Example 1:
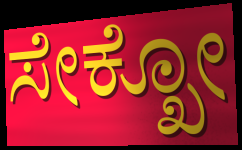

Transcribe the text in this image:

ಸೇಕ್ಖೋ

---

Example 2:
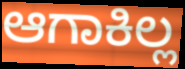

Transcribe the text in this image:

ಆಗಾಕಿಲ್ಲ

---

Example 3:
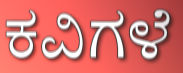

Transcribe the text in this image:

ಕವಿಗಳೆ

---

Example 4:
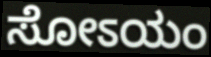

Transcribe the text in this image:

ಸೋಽಯಂ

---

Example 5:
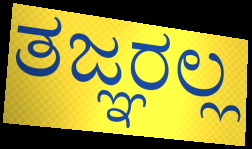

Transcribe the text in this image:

ತಜ್ಞರಲ್ಲ